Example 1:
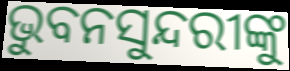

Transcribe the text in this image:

ଭୁବନସୁନ୍ଦରୀଙ୍କୁ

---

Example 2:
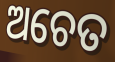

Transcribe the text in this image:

ଅଚେତ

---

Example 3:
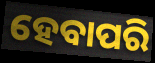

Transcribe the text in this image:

ହେବାପରି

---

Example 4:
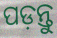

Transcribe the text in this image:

ପଡ଼ନ୍ତୁ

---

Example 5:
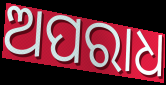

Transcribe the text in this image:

ଅପରାଧ